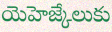
యెహెజ్కేలుకు